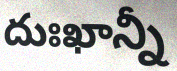
దుఃఖాన్నీ